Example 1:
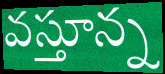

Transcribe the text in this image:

వస్తూన్న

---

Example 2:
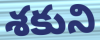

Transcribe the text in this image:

శకుని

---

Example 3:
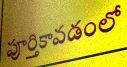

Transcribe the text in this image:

పూర్తికావడంలో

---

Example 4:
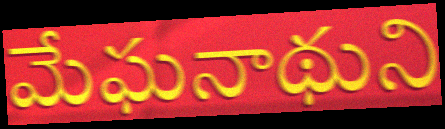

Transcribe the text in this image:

మేఘనాథుని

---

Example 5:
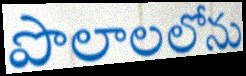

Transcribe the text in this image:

పొలాలలోను